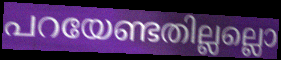
പറയേണ്ടതില്ലല്ലൊ